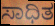
ಸಾಧಿತ